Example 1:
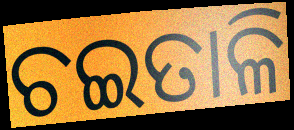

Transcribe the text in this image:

ଚଇତାଳି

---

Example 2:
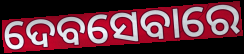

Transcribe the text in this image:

ଦେବସେବାରେ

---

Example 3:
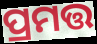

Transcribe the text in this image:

ପ୍ରମତ୍ତ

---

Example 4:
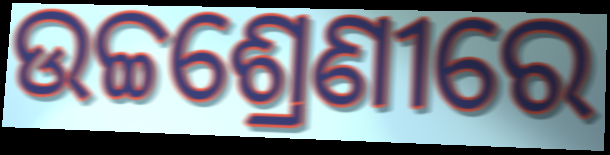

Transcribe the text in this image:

ଉଚ୍ଚଶ୍ରେଣୀରେ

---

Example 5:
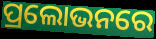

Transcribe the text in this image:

ପ୍ରଲୋଭନରେ